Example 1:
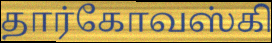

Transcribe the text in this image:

தார்கோவஸ்கி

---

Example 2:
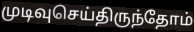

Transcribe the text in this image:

முடிவுசெய்திருந்தோம்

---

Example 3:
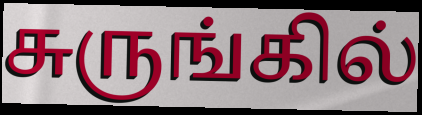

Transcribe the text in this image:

சுருங்கில்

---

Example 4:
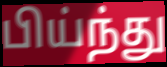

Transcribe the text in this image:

பிய்ந்து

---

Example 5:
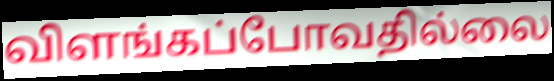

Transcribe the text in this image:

விளங்கப்போவதில்லை